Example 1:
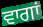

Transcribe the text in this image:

ਵਾਗਾਂ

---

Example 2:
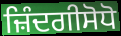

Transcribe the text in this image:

ਜ਼ਿੰਦਗੀਸੋਧੋ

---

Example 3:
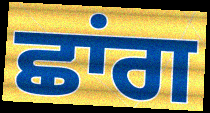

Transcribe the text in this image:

ਛਾਂਗ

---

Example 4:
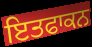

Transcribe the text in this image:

ਇਤਫਾਕਨ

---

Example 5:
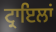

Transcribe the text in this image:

ਟ੍ਰਾਇਲਾਂ